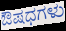
ಔಷಧಗಳು